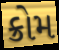
ક્રોમ